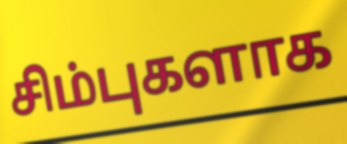
சிம்புகளாக